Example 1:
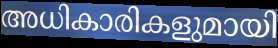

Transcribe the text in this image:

അധികാരികളുമായി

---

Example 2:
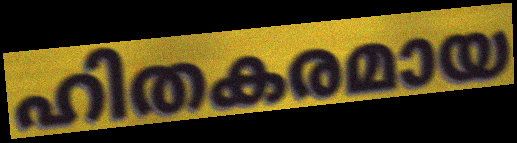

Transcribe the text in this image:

ഹിതകരമായ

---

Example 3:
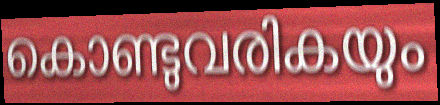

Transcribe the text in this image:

കൊണ്ടുവരികയും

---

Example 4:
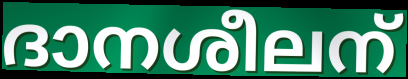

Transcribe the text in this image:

ദാനശീലന്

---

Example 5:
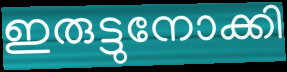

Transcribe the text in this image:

ഇരുട്ടുനോക്കി